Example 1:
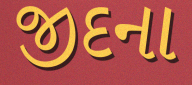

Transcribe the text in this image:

જીદના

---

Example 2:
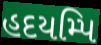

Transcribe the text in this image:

હદયમ્પિ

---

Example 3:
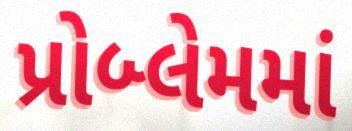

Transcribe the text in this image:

પ્રોબ્લેમમાં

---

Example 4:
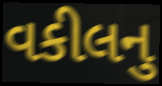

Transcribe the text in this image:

વકીલનુ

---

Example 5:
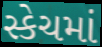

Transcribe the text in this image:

સ્કેચમાં